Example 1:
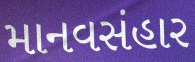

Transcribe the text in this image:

માનવસંહાર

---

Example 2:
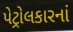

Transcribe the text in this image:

પેટ્રોલકારનાં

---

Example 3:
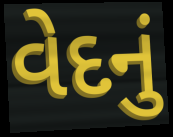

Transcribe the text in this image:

વેદનું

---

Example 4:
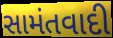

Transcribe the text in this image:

સામંતવાદી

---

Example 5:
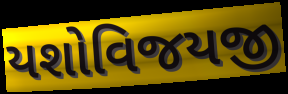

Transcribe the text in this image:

યશોવિજયજી